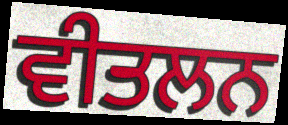
ਵੀਤਲਨ